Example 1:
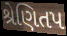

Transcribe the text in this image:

શ્રેણિતપ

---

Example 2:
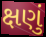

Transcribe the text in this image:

ક્ષણું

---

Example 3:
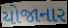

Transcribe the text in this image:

યોજાનાર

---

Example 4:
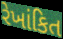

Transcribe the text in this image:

રેખાંકિત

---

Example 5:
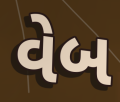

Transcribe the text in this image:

વેબ